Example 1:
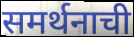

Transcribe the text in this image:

समर्थनाची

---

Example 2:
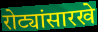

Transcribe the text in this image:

रोट्यांसारखे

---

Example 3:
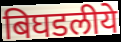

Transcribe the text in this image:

बिघडलीये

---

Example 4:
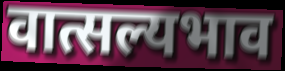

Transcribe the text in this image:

वात्सल्यभाव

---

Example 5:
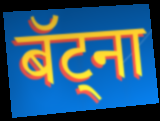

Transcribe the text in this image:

बॅट्ना